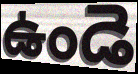
ఉండె